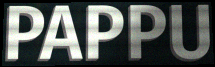
PAPPU